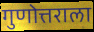
गुणोत्तराला